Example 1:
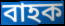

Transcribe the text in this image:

বাহক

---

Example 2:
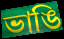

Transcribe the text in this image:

ভাঙি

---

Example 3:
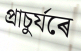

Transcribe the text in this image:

প্ৰাচুৰ্যৰে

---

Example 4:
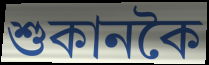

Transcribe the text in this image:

শুকানকৈ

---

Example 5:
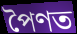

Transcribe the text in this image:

পৈণত